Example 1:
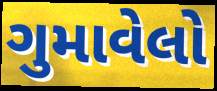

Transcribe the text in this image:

ગુમાવેલો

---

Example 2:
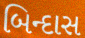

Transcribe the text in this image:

બિન્દાસ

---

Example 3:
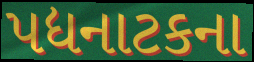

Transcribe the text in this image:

પદ્યનાટકના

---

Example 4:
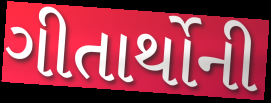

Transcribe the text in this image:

ગીતાર્થોની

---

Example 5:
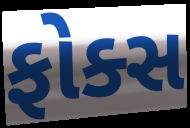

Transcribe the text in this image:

ફોક્સ